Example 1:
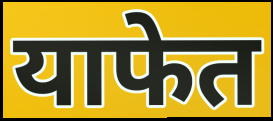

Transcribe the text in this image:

याफेत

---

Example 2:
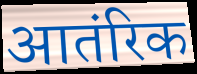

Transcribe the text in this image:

आतंरिक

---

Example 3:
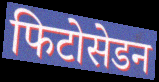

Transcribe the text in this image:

फिटोसेडन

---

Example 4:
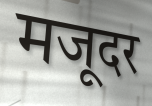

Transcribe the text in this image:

मजूदर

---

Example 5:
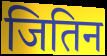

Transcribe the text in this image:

जितिन